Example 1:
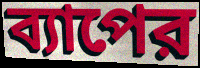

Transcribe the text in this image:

ব্যাপের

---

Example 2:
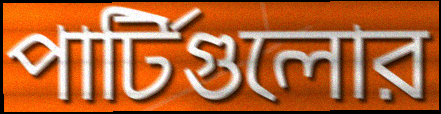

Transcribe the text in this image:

পার্টিগুলোর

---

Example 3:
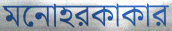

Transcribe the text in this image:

মনোহরকাকার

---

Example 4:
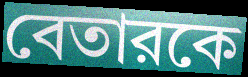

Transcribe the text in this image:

বেতারকে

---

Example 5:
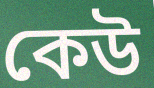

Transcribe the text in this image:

কেউ